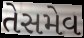
તેસમેવ